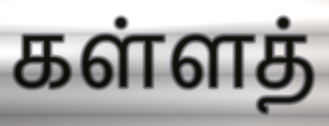
கள்ளத்